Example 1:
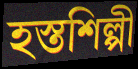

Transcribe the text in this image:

হস্তশিল্পী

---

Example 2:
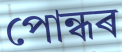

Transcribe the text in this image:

পোন্ধৰ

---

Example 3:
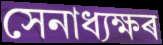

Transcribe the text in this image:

সেনাধ্যক্ষৰ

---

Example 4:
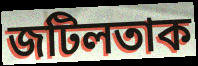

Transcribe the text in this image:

জটিলতাক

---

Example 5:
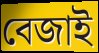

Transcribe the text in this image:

বেজাই